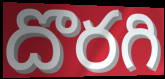
దొరగి